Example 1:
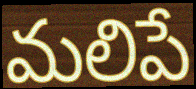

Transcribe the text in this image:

మలిపే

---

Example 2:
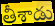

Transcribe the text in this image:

తీశాడు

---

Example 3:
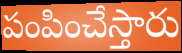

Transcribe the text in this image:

పంపించేస్తారు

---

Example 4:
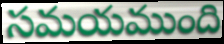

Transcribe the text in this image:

సమయముంది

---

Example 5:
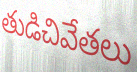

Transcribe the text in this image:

తుడిచివేతలు